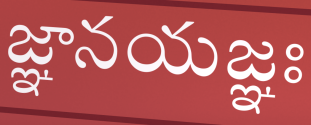
జ్ఞానయజ్ఞః